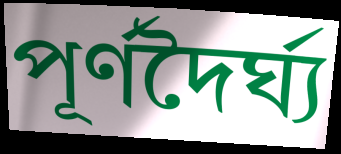
পূৰ্ণদৈৰ্ঘ্য